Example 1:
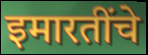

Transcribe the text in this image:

इमारतींचे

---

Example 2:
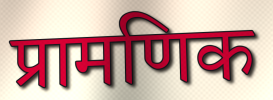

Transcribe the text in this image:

प्रामणिक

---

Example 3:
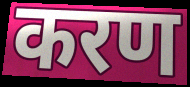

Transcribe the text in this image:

करण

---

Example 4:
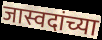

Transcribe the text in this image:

जास्वदांच्या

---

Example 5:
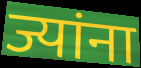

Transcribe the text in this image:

ज्यांना